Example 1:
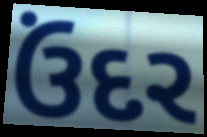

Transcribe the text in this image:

ઉંદર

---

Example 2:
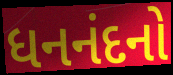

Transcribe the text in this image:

ધનનંદનો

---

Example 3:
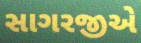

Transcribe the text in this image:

સાગરજીએ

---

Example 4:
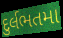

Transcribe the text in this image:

દુર્લભતમા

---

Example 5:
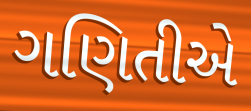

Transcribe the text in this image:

ગણિતીએ